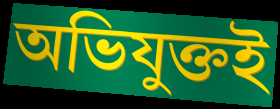
অভিযুক্তই